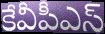
కేవీపీఎస్